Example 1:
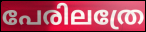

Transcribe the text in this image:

പേരിലത്രേ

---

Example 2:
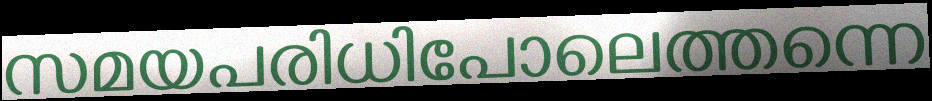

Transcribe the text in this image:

സമയപരിധിപോലെത്തന്നെ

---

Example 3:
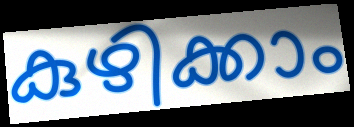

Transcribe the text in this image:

കുഴിക്കാം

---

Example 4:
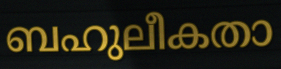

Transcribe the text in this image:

ബഹുലീകതാ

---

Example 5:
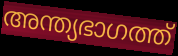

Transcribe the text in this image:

അന്ത്യഭാഗത്ത്